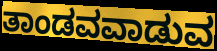
ತಾಂಡವವಾಡುವ